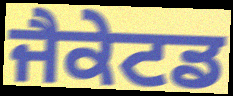
ਜੈਕੇਟਡ